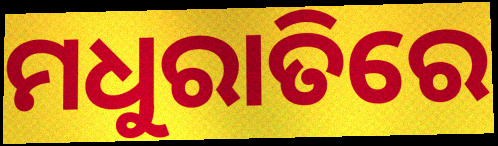
ମଧୁରାତିରେ